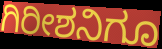
ಗಿರೀಶನಿಗೂ